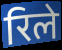
रिले